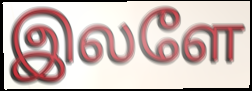
இலளே